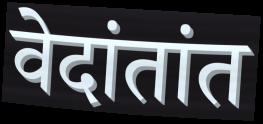
वेदांतांत